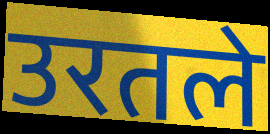
उरतले